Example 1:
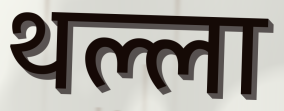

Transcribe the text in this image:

थल्ला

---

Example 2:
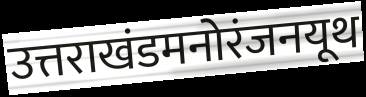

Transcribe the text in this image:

उत्तराखंडमनोरंजनयूथ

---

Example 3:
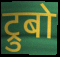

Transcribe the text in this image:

ट्रुबो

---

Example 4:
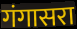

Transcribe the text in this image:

गंगासरा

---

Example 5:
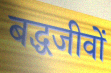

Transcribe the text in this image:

बद्धजीवों